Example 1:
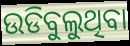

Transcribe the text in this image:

ଉଡିବୁଲୁଥିବା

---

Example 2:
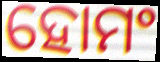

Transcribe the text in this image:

ହୋମଂ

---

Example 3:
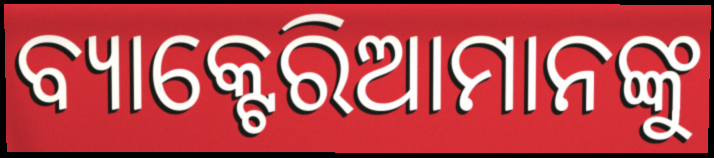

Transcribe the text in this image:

ବ୍ୟାକ୍ଟେରିଆମାନଙ୍କୁ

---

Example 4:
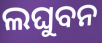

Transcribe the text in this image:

ଲଘୁବନ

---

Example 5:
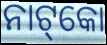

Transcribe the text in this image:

ନାଟ୍‌କୋ